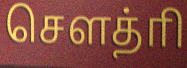
சௌத்ரி